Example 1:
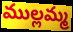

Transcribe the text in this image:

ముల్లమ్మ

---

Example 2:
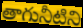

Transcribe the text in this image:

తాగునీటిని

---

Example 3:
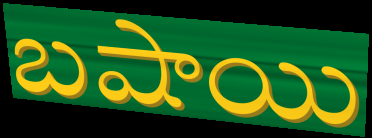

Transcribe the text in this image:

బషాయి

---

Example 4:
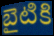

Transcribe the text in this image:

బైటికి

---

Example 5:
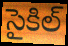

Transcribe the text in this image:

సైకిల్